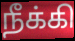
நீக்கி